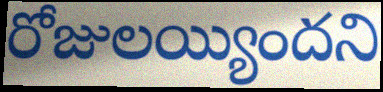
రోజులయ్యిందని